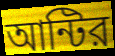
আন্টির